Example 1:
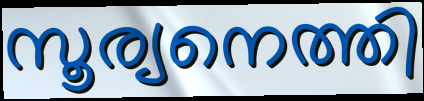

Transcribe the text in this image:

സൂര്യനെത്തി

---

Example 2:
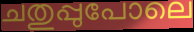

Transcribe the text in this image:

ചതുപ്പുപോലെ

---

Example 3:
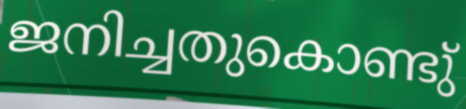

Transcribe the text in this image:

ജനിച്ചതുകൊണ്ടു്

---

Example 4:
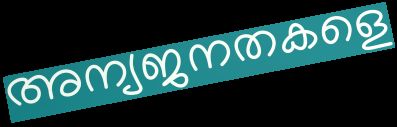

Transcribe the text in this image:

അന്യജനതകളെ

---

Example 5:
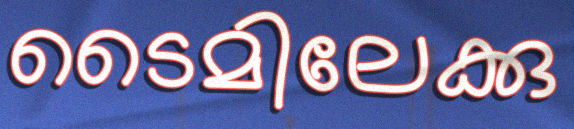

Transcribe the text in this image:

ടൈമിലേക്കു